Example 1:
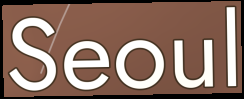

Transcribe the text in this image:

Seoul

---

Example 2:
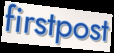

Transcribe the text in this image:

firstpost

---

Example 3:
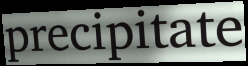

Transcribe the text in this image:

precipitate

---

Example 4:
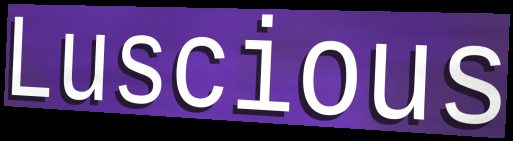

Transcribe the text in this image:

Luscious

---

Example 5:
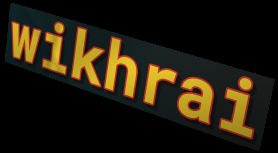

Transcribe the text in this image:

wikhrai